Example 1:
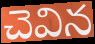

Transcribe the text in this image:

చెవిన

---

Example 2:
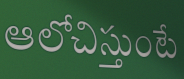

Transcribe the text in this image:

ఆలోచిస్తుంటే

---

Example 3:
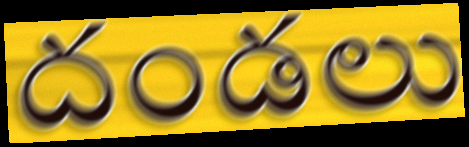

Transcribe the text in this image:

దండలు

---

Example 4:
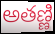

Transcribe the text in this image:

అతణ్ణి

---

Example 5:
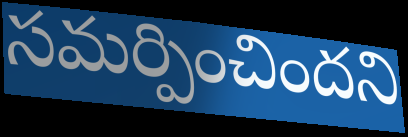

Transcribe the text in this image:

సమర్పించిందని